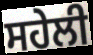
ਸਹੇਲੀ